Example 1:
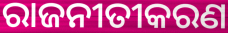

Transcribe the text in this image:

ରାଜନୀତୀକରଣ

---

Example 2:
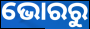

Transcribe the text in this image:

ଭୋରରୁ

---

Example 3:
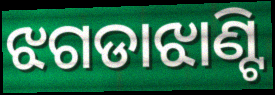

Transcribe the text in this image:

ଝଗଡାଝାଣ୍ଟି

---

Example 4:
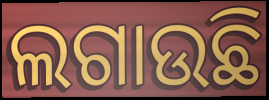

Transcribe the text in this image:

ଲଗାଉଛି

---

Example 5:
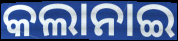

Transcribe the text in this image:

କଲାନାଇ